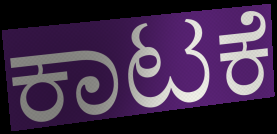
ಕಾಟಕೆ